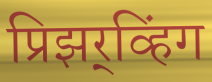
प्रिझर्व्हिंग